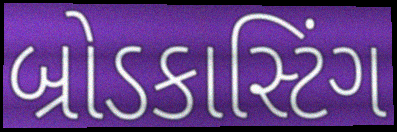
બ્રોડકાસ્ટિંગ